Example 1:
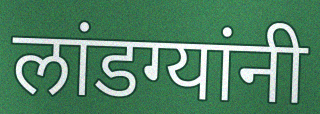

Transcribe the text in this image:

लांडग्यांनी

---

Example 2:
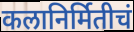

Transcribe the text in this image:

कलानिर्मितीचं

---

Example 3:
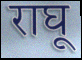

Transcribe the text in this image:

राघू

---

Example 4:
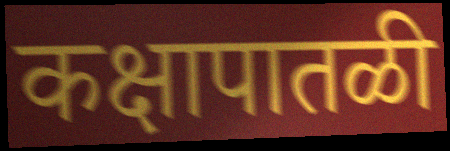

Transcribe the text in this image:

कक्षापातळी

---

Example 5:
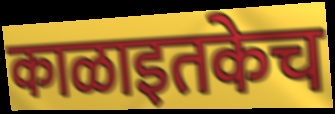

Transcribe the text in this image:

काळाइतकेच